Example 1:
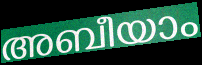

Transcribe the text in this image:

അബീയാം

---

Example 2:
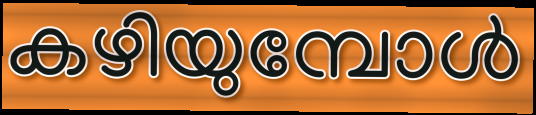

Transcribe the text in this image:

കഴിയുമ്പോൾ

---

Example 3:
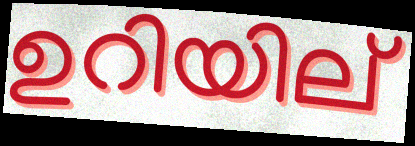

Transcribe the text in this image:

ഉറിയില്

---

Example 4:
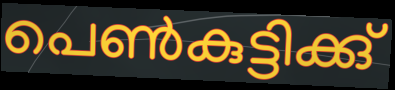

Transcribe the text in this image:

പെൺകുട്ടിക്കു്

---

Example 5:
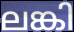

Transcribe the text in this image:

ലങ്കി